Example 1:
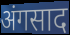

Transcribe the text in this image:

अंगसाद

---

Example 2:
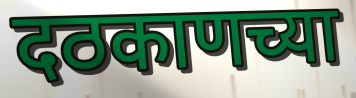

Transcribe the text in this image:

दठकाणच्या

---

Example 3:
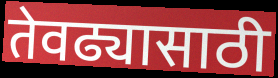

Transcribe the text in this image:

तेवढ्यासाठी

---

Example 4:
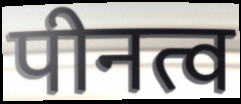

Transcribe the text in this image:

पीनत्व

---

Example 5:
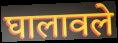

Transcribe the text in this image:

घालावले